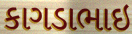
કાગડાભાઇ